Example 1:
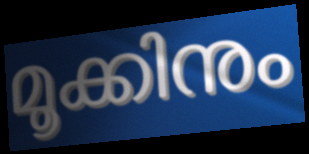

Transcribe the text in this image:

മൂക്കിനും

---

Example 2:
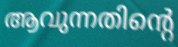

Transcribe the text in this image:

ആവുന്നതിന്റെ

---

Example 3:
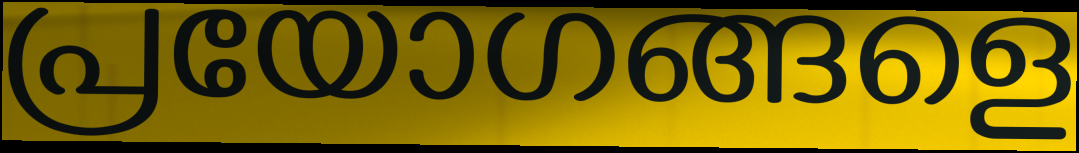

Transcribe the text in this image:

പ്രയോഗങ്ങളെ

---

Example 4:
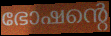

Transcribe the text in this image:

ഭോഷന്റെ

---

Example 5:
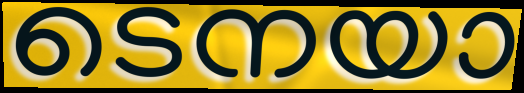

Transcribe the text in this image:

ടെനയാ